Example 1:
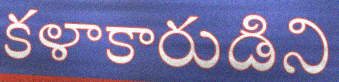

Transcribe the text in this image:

కళాకారుడిని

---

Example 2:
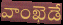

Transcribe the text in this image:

వాంఖెడే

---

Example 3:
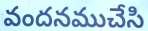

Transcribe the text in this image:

వందనముచేసి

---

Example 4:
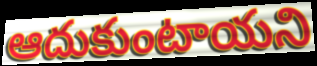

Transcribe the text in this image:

ఆదుకుంటాయని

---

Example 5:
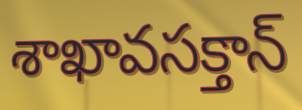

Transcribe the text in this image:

శాఖావసక్తాన్